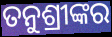
ତନୁଶ୍ରୀଙ୍କର